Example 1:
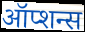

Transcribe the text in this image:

ऑप्शन्स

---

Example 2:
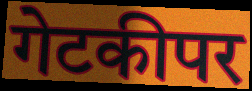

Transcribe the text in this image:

गेटकीपर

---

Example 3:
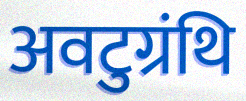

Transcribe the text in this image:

अवटुग्रंथि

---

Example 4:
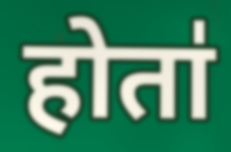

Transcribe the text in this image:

होता॑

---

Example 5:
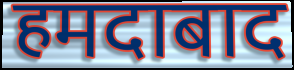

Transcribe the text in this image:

हमदाबाद